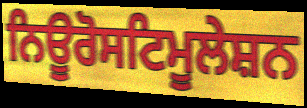
ਨਿਊਰੋਸਟਿਮੂਲੇਸ਼ਨ